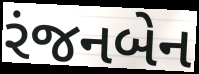
રંજનબેન